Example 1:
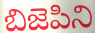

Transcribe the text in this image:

బిజెపిని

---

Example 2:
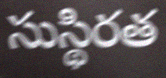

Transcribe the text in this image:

సుస్థిరత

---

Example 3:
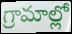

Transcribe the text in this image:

గ్రామాల్లో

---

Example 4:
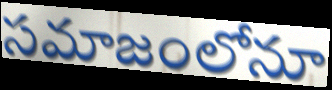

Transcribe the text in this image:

సమాజంలోనూ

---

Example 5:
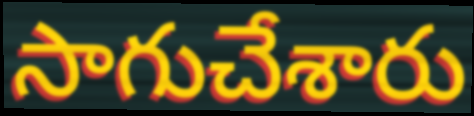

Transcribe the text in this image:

సాగుచేశారు